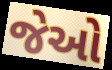
જેઓ